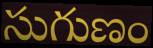
సుగుణం